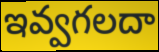
ఇవ్వగలదా